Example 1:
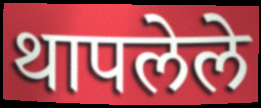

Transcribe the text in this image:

थापलेले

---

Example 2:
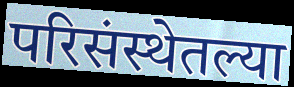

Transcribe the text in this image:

परिसंस्थेतल्या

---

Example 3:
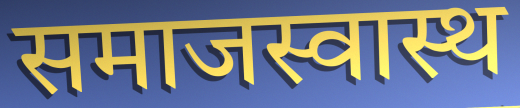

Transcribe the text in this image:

समाजस्वास्थ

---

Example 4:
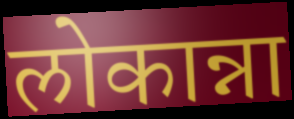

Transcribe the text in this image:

लोकान्ना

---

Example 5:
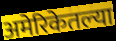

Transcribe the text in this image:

अमेरिकेतल्या